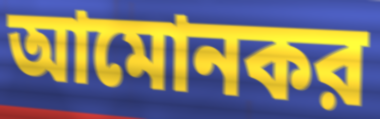
আমোনকর